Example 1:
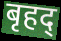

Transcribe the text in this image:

बृहद्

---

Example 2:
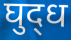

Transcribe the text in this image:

घुद्ध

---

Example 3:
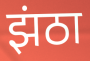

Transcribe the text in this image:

झंठा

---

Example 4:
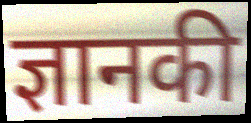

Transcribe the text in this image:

ज्ञानकी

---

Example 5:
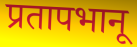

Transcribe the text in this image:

प्रतापभानू